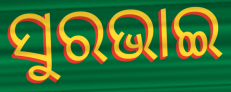
ସୁରଭାଇ